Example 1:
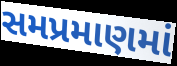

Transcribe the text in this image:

સમપ્રમાણમાં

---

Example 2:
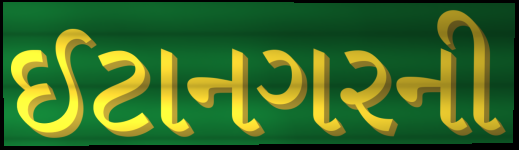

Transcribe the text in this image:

ઈટાનગરની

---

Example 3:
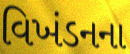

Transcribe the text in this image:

વિખંડનના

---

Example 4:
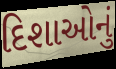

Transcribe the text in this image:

દિશાઓનું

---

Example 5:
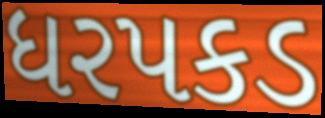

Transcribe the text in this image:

ધરપકડ